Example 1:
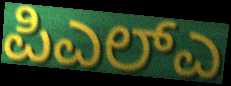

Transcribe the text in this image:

ಪಿಎಲ್ಎ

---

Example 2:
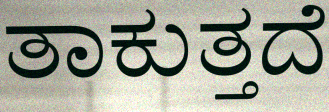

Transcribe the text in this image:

ತಾಕುತ್ತದೆ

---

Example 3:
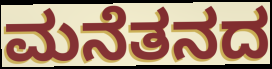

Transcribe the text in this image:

ಮನೆತನದ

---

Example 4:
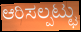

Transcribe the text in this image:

ಆರಿಸಲ್ಪಟ್ಟು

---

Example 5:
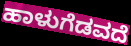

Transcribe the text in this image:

ಹಾಳುಗೆಡವದೆ